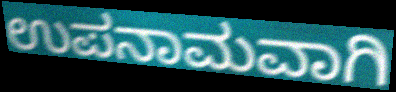
ಉಪನಾಮವಾಗಿ